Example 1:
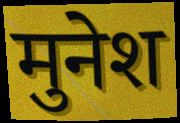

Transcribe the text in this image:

मुनेश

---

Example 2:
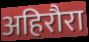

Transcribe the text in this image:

अहिरौरा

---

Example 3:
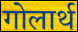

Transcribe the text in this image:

गोलार्थ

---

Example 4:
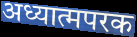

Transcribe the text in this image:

अध्यात्मपरक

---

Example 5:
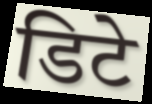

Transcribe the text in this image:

डिटे